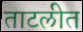
ताटलीत